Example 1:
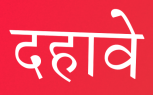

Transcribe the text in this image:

दहावे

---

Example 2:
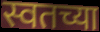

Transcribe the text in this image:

स्वतच्या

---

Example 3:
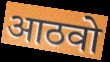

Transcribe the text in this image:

आठवो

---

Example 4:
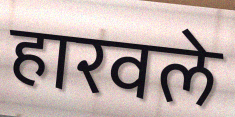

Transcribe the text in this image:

हारवले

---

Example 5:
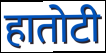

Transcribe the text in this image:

हातोटी